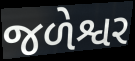
જળેશ્વર